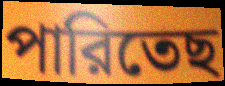
পারিতেছ